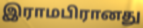
இராமபிரானது